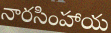
నారసింహాయ